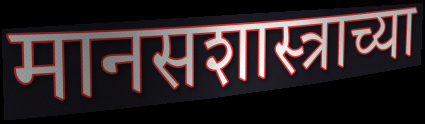
मानसशास्त्राच्या